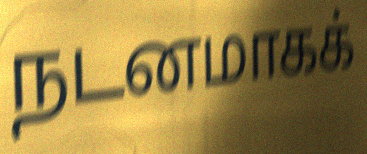
நடனமாகக்